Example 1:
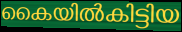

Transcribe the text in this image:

കൈയിൽകിട്ടിയ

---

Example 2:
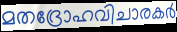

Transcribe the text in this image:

മതദ്രോഹവിചാരകർ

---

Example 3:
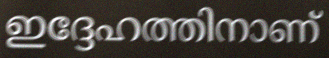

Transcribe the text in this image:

ഇദ്ദേഹത്തിനാണ്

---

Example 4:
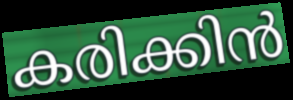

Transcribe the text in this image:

കരിക്കിൻ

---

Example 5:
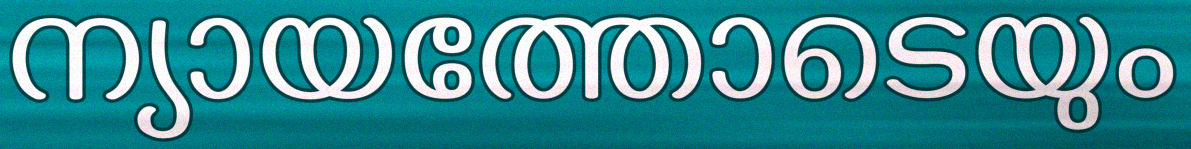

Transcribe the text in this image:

ന്യായത്തോടെയും